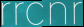
rrcnr